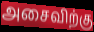
அசைவிற்கு